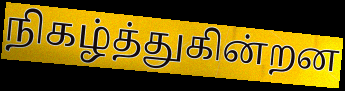
நிகழ்த்துகின்றன